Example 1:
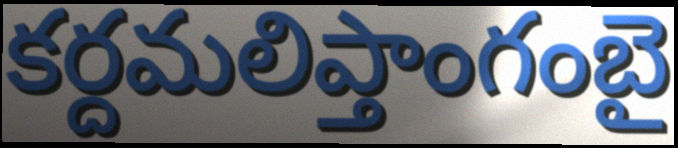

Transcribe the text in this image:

కర్దమలిప్తాంగంబై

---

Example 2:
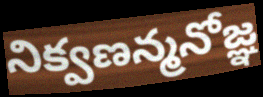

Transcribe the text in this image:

నిక్వణన్మనోజ్ఞ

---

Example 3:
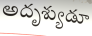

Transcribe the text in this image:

అదృశ్యుడూ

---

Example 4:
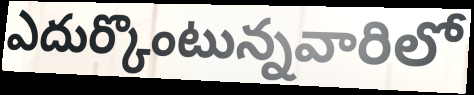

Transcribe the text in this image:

ఎదుర్కొంటున్నవారిలో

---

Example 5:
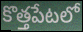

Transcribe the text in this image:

కొత్తపేటలో